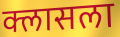
क्लासला